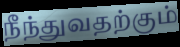
நீந்துவதற்கும்